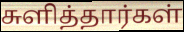
சுளித்தார்கள்